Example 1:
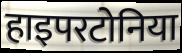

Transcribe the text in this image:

हाइपरटोनिया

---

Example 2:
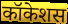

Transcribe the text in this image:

कॉकेशस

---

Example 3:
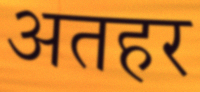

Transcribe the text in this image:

अतहर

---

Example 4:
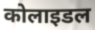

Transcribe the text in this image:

कोलाइडल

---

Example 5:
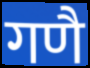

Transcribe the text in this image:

गणै